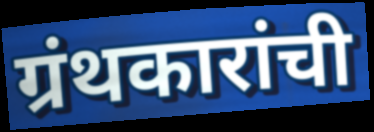
ग्रंथकारांची